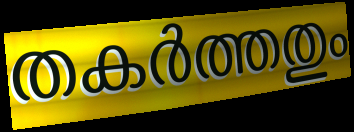
തകർത്തതും